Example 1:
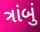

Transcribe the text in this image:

ત્રાંબું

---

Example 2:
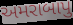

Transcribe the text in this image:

અમરાબાપુ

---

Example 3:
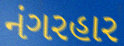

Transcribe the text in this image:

નંગરહાર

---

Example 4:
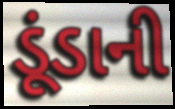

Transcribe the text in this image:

ડૂંડાની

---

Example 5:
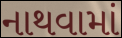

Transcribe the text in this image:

નાથવામાં